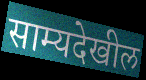
साम्यदेखील